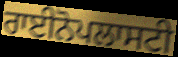
ਰਾਈਨੋਪਲਾਸਟੀ